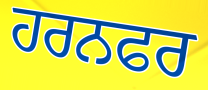
ਹਰਨਫਰ